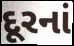
દૂરનાં